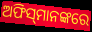
ଅଫିସ୍‌ମାନଙ୍କରେ